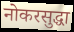
नोकरसुद्धा